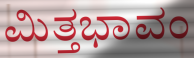
ಮಿತ್ತಭಾವಂ